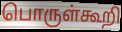
பொருள்கூறி